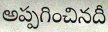
అప్పగించినదీ